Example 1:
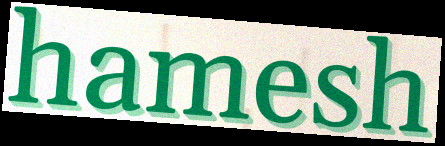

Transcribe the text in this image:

hamesh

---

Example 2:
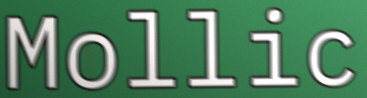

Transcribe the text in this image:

Mollic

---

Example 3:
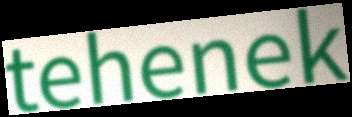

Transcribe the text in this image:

tehenek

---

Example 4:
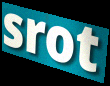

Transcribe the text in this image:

srot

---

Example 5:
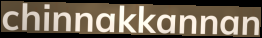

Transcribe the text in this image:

chinnakkannan